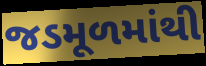
જડમૂળમાંથી